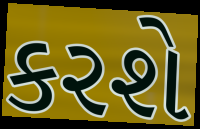
કરશે